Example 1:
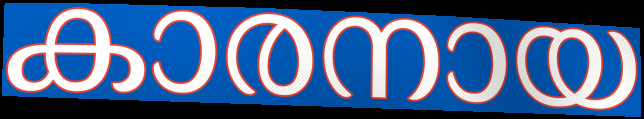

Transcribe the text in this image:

കാരനായ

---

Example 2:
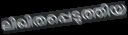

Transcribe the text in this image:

ലിഖിതപ്പെടുത്തിയ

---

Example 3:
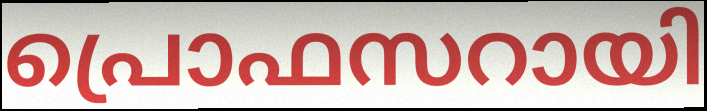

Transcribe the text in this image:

പ്രൊഫസറായി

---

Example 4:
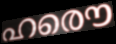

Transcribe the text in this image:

ഹരൌ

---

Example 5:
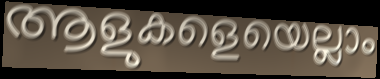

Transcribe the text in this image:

ആളുകളെയെല്ലാം